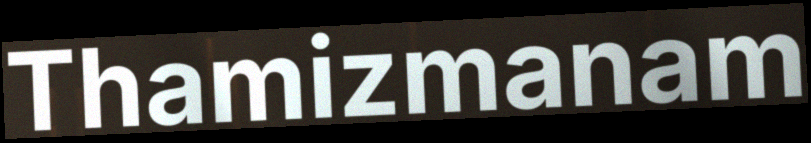
Thamizmanam